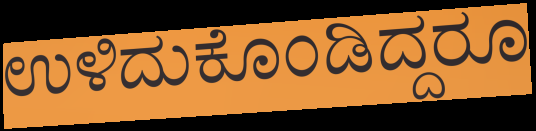
ಉಳಿದುಕೊಂಡಿದ್ದರೂ